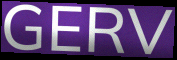
GERV